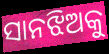
ସାନଝିଅକୁ